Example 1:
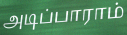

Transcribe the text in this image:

அடிப்பாராம்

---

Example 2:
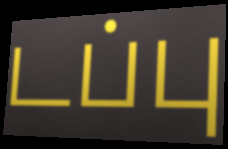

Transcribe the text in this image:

டப்பு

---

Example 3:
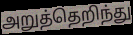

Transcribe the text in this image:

அறுத்தெறிந்து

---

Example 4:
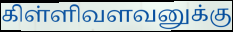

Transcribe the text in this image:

கிள்ளிவளவனுக்கு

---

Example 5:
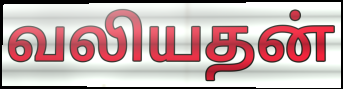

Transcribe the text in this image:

வலியதன்